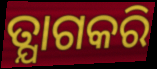
ତ୍ଯାଗକରି